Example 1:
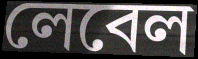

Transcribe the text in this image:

লেবেল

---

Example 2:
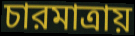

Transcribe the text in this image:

চারমাত্রায়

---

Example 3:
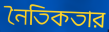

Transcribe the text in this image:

নৈতিকতার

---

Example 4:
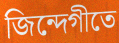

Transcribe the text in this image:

জিন্দেগীতে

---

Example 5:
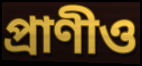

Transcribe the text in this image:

প্রাণীও